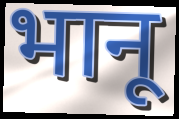
भानू